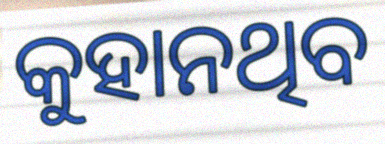
କୁହାନଥିବ